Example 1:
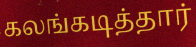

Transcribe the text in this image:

கலங்கடித்தார்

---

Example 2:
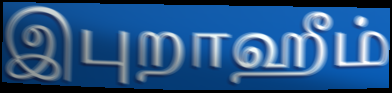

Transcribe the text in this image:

இபுறாஹீம்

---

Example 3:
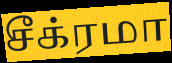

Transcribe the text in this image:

சீக்ரமா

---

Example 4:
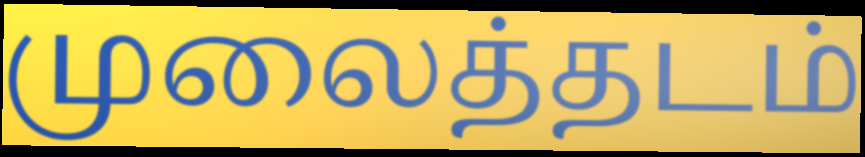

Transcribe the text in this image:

முலைத்தடம்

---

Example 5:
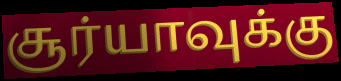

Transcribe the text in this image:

சூர்யாவுக்கு